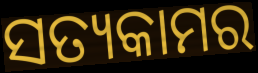
ସତ୍ୟକାମର